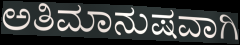
ಅತಿಮಾನುಷವಾಗಿ